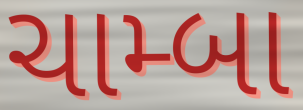
ચામ્બા